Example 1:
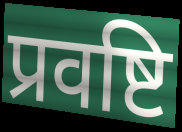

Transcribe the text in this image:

प्रवष्टि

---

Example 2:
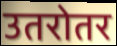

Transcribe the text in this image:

उतरोतर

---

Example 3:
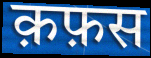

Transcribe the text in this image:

क़फ़स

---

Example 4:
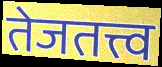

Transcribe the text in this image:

तेजतत्त्व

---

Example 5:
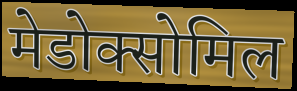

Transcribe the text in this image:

मेडोक्सोमिल